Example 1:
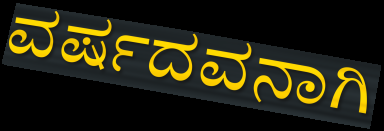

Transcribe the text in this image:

ವರ್ಷದವನಾಗಿ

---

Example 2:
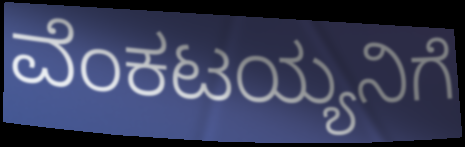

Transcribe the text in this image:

ವೆಂಕಟಯ್ಯನಿಗೆ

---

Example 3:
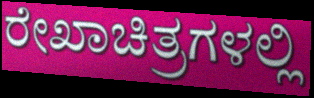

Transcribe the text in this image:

ರೇಖಾಚಿತ್ರಗಳಲ್ಲಿ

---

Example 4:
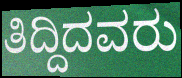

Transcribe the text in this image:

ತಿದ್ದಿದವರು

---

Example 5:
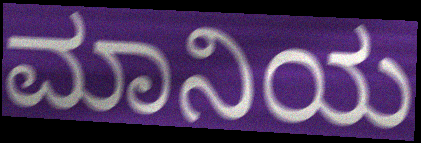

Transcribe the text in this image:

ಮಾನಿಯ